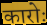
कारोः